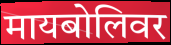
मायबोलिवर